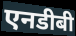
एनडीबी